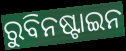
ରୁବିନଷ୍ଟାଇନ